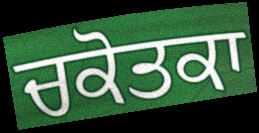
ਚਕੋਤਕਾ